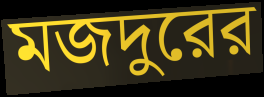
মজদুরের